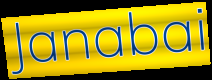
Janabai